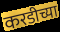
करडीच्या